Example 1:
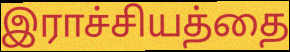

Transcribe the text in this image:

இராச்சியத்தை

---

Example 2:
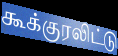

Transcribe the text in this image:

கூக்குரலிட்டு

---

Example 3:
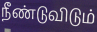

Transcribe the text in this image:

நீண்டுவிடும்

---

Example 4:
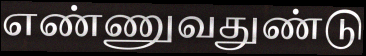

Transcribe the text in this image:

எண்ணுவதுண்டு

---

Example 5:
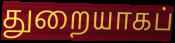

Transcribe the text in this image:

துறையாகப்